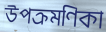
উপক্রমণিকা